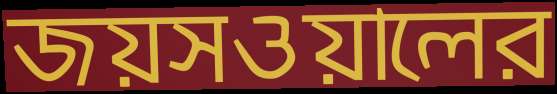
জয়সওয়ালের